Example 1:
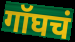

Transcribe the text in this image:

गॉघचं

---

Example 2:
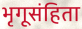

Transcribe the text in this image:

भृगूसंहिता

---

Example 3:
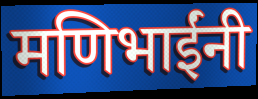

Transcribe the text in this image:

मणिभाईंनी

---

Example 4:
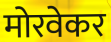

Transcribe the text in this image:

मोरवेकर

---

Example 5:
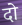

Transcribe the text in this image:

दो